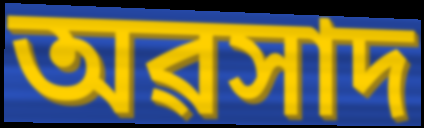
অৱসাদ